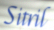
Sitril